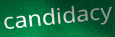
candidacy